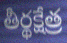
తీర్థక్షేత్ర